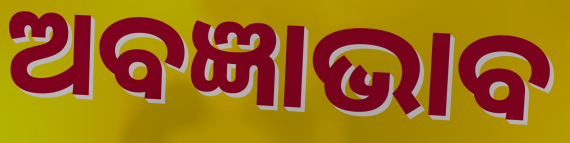
ଅବଜ୍ଞାଭାବ